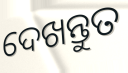
ଦେଖନ୍ତୁତ